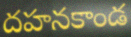
దహనకాండ